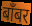
बाँबर